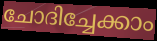
ചോദിച്ചേക്കാം